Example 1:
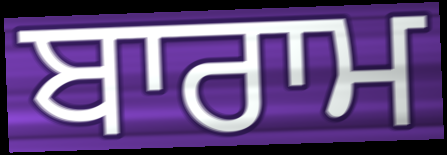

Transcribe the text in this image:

ਬਾਰਾਮ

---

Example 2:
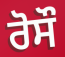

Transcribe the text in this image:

ਰੋਸੌ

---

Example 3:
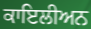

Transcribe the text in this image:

ਕਾਇਲੀਅਨ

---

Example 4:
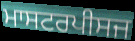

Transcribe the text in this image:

ਮਾਸਟਰਪੀਸਜ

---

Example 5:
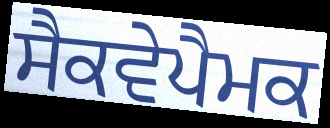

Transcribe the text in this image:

ਸੈਕਵੇਪੈਮਕ